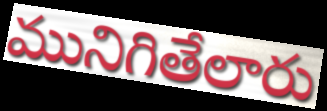
మునిగితేలారు